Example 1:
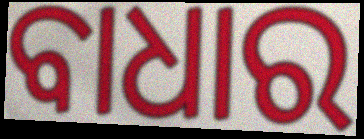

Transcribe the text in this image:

ବାଧାର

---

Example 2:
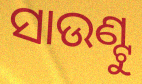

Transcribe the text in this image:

ସାଉଣ୍ଟୁ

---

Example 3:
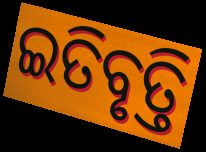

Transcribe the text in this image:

ଇତିବୃତ୍ତି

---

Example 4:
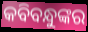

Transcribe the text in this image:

କବିବନ୍ଧୁଙ୍କର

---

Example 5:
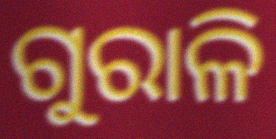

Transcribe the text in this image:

ଗୁରାଳି